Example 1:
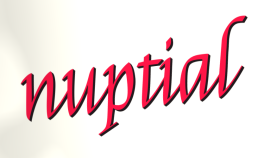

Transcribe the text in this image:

nuptial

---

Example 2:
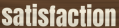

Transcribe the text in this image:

satisfaction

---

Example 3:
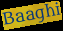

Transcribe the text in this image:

Baaghi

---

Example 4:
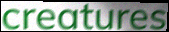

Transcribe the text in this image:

creatures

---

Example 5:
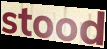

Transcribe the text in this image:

stood